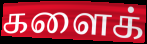
களைக்